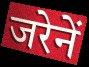
जरेनें